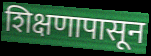
शिक्षणापासून